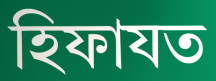
হিফাযত